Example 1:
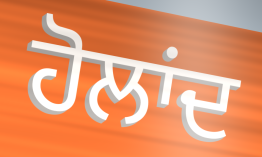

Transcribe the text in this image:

ਹੋਲਾਂਦ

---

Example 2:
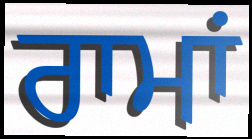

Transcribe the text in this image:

ਰਾਮਾਂ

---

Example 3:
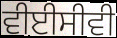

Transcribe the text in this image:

ਵੀਈਸੀਵੀ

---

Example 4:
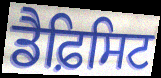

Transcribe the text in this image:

ਡੈਫ਼ਿਸਿਟ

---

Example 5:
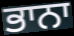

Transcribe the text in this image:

ਭਾਨਾ